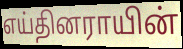
எய்தினராயின்